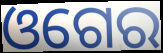
ଓଗେର